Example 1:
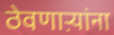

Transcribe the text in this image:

ठेवणाऱ्‍यांना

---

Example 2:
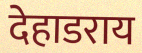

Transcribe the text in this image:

देहाडराय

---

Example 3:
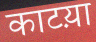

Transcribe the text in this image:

काटय़ा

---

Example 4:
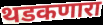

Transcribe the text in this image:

थडकणारा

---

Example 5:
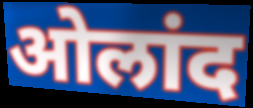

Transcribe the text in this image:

ओलांद